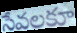
సేవలకూ